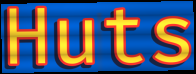
Huts